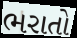
ભરાતો